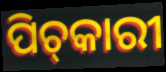
ପିଚ୍‌କାରୀ